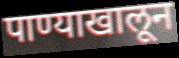
पाण्याखालून